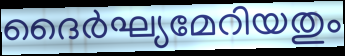
ദൈർഘ്യമേറിയതും